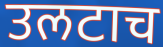
उलटाच